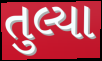
તુલ્યા